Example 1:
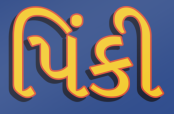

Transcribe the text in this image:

પિંકી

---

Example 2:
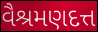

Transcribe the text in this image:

વૈશ્રમણદત્ત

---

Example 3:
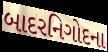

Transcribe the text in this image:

બાદરનિગોદના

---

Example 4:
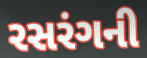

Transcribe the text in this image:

રસરંગની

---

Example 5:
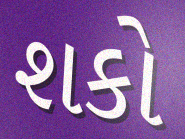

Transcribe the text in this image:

શકો